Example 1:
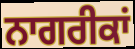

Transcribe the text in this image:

ਨਾਗਰੀਕਾਂ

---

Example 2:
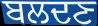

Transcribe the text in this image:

ਬਲਦਣ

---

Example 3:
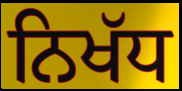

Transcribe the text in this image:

ਨਿਖੱਧ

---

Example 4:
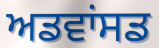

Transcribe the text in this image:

ਅਡਵਾਂਸਡ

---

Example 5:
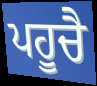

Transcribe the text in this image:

ਪਹੂਚੈ